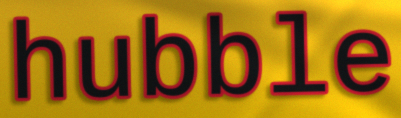
hubble